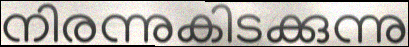
നിരന്നുകിടക്കുന്നു